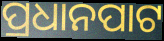
ପ୍ରଧାନପାଟ